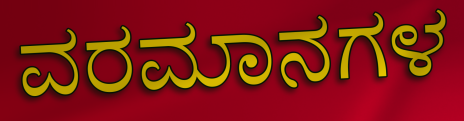
ವರಮಾನಗಳ